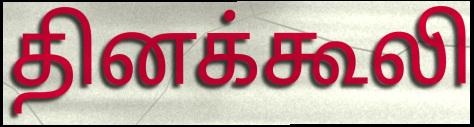
தினக்கூலி